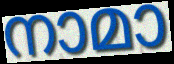
നാമാ